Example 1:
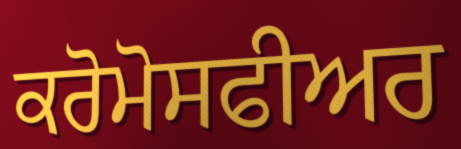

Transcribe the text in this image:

ਕਰੋਮੋਸਫੀਅਰ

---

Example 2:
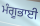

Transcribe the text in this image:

ਮੰਗੂਭਾਈ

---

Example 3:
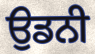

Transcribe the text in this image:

ਉਡਨੀ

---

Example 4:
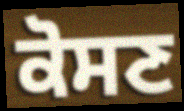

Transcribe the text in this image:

ਕੋਸਣ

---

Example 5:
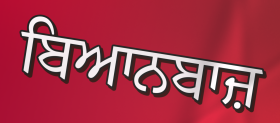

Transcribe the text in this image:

ਬਿਆਨਬਾਜ਼